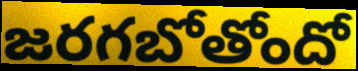
జరగబోతోందో